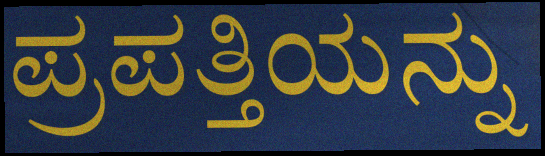
ಪ್ರಪತ್ತಿಯನ್ನು